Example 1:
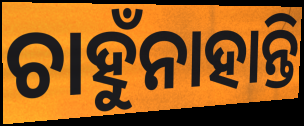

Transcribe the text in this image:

ଚାହୁଁନାହାନ୍ତି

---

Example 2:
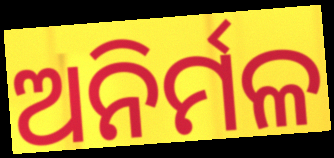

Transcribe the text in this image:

ଅନିର୍ମଳ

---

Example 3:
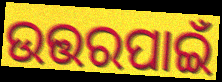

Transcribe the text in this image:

ଉତ୍ତରପାଇଁ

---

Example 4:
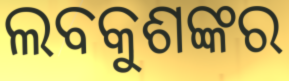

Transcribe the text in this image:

ଲବକୁଶଙ୍କର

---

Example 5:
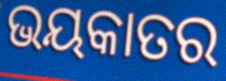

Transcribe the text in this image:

ଭୟକାତର